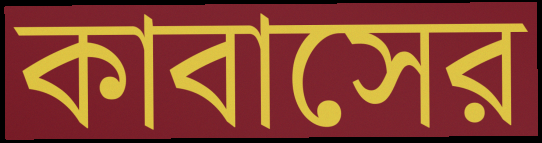
কাবাসের